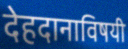
देहदानाविषयी